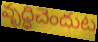
వృద్ధిచెందుట